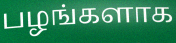
பழங்களாக